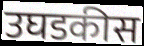
उघडकीस